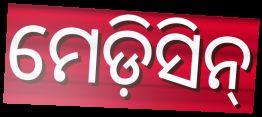
ମେଡ଼ିସିନ୍